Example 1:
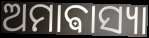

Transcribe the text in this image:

ଅମାଵାସ୍ୟା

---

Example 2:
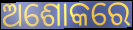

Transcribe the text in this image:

ଅଶୋକରେ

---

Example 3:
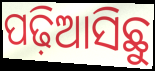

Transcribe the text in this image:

ପଢ଼ିଆସିଛୁ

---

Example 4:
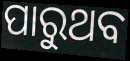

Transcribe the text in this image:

ପାରୁଥବ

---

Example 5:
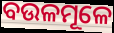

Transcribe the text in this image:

ବଉଳମୂଳେ